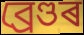
ব্ৰেণ্ডৰ